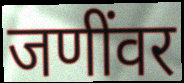
जणींवर